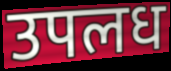
उपलध